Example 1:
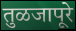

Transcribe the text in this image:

तुळजापूरे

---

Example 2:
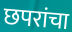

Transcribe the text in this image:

छपरांचा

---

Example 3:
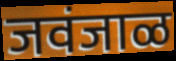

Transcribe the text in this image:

जवंजाळ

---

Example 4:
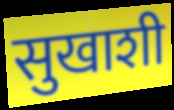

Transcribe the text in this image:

सुखाशी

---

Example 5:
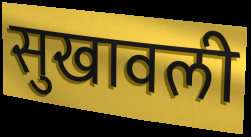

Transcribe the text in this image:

सुखावली